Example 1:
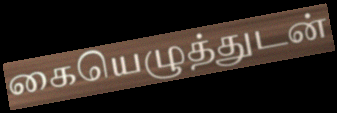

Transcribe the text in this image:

கையெழுத்துடன்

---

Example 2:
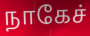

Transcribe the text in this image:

நாகேச்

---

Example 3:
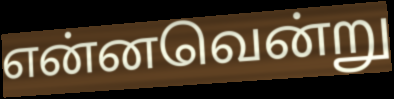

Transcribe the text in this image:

என்னவென்று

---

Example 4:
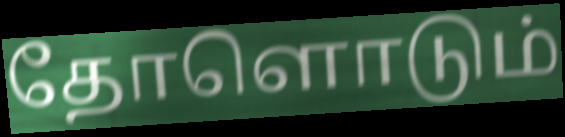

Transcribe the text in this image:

தோளொடும்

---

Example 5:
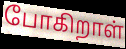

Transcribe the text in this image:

போகிறாள்